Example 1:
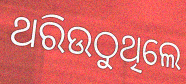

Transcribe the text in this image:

ଥରିଉଠୁଥିଲେ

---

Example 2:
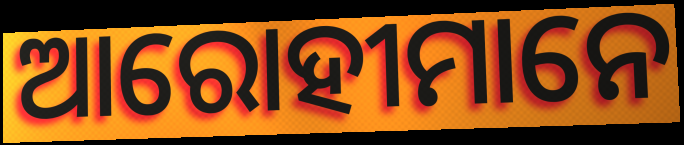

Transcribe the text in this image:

ଆରୋହୀମାନେ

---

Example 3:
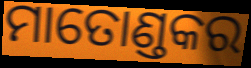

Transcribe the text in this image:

ମାତୋଣ୍ଡକର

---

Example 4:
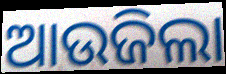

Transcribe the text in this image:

ଆଉଜିଲା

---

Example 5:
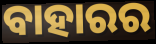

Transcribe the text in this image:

ବାହାରର